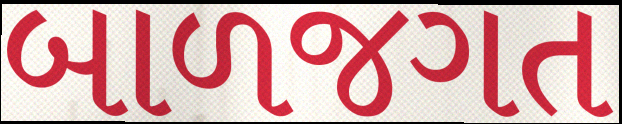
બાળજગત